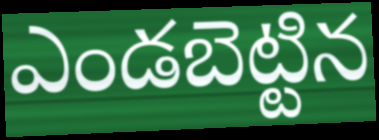
ఎండబెట్టిన